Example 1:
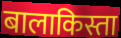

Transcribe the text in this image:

बालाकिस्ता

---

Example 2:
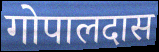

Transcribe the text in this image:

गोपालदास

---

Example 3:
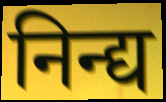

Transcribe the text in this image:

निन्द्य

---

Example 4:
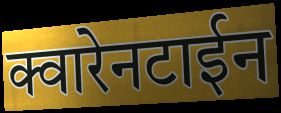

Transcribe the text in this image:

क्वारेनटाईन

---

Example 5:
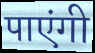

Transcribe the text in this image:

पाएंगी